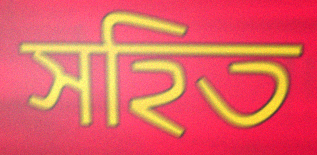
সহিত